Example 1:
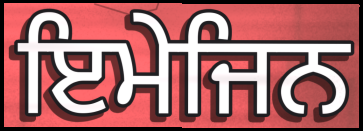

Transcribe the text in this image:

ਇਮੇਜਿਨ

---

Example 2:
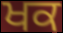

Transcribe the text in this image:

ਖਕ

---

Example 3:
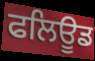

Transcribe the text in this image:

ਫਲਿਊਡ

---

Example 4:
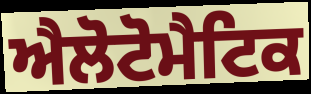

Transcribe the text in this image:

ਐਲੋਟੋਮੈਟਿਕ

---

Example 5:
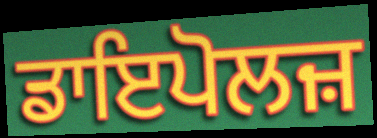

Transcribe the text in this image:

ਡਾਇਪੋਲਜ਼